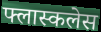
फ्लास्कलेस